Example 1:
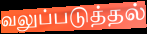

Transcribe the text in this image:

வலுப்படுத்தல்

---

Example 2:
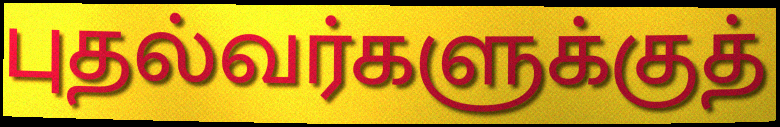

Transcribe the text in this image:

புதல்வர்களுக்குத்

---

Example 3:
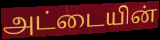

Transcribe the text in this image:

அட்டையின்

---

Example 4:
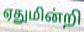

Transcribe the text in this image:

ஏதுமின்றி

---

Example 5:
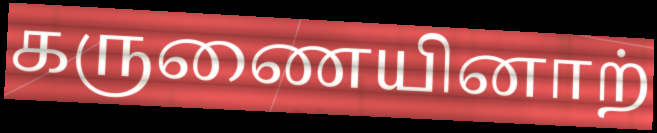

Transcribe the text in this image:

கருணையினாற்